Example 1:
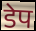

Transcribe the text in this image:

डेप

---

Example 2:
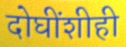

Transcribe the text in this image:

दोघींशीही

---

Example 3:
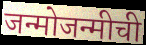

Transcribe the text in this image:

जन्मोजन्मीची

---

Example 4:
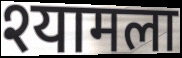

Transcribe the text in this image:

श्यामला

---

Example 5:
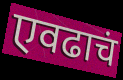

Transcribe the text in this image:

एवढाचं